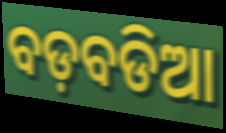
ବଡ଼ବଡିଆ